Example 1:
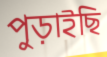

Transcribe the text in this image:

পুড়াইছি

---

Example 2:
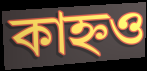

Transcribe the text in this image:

কাহ্নও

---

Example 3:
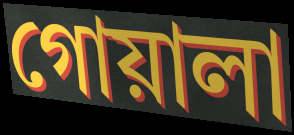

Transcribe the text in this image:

গোয়ালা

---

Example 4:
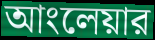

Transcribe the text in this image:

আংলেয়ার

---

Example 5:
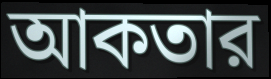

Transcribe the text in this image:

আকতার